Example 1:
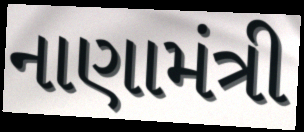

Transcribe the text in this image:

નાણામંત્રી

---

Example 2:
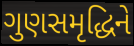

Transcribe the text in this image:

ગુણસમૃદ્ધિને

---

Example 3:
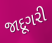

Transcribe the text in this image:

જાદૂગરી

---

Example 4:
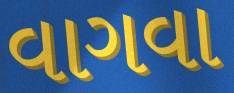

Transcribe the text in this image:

વાગવા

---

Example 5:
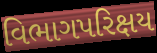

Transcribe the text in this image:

વિભાગપરિક્ષય